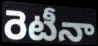
రెటీనా